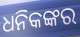
ଧନିକଙ୍କର